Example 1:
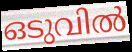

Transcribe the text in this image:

ഒടുവിൽ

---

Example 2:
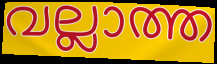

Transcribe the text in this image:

വല്ലാത്ത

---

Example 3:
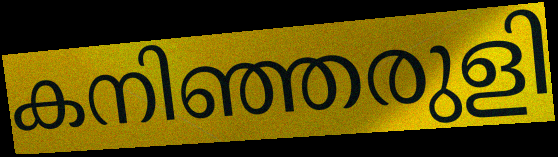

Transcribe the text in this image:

കനിഞ്ഞരുളി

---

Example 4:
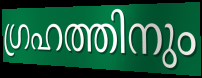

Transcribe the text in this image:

ഗ്രഹത്തിനും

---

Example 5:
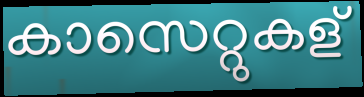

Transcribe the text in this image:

കാസെറ്റുകള്